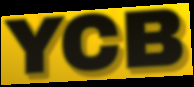
YCB